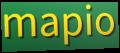
mapio